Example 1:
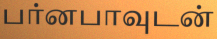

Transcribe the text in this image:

பர்னபாவுடன்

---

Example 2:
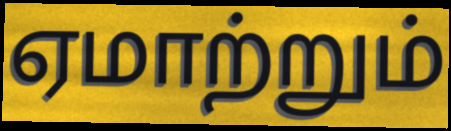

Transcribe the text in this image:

ஏமாற்றும்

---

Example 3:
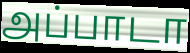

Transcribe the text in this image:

அப்பாடா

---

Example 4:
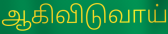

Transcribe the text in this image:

ஆகிவிடுவாய்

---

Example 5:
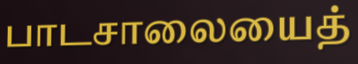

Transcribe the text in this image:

பாடசாலையைத்